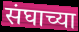
संघाच्या